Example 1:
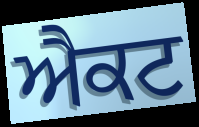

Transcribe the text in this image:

ਐਕਟ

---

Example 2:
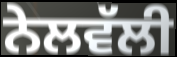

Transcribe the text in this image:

ਨੇਲਵੱਲੀ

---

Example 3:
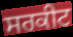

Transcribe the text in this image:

ਸਰਕੀਟ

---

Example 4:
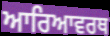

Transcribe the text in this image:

ਆਰਿਆਵਰਥ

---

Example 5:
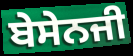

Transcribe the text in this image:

ਬੇਸੇਨਜੀ